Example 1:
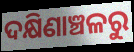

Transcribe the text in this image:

ଦକ୍ଷିଣାଞ୍ଚଳରୁ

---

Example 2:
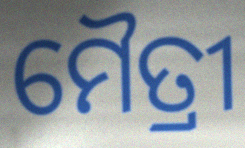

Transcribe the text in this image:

ମୈତ୍ରୀ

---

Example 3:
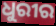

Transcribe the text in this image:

ଧୁରୀର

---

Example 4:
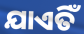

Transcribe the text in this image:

ଯାଏତିଁ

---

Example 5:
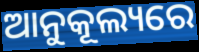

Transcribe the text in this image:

ଆନୁକୂଲ୍ୟରେ